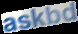
askbd